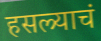
हसल्याचं